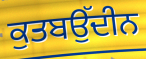
ਕੁਤਬਉੱਦੀਨ